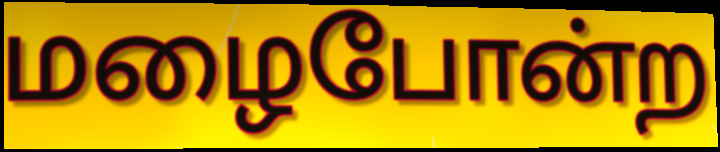
மழைபோன்ற